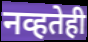
नव्हतेही